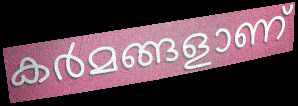
കർമങ്ങളാണ്